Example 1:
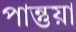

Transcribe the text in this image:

পান্তুয়া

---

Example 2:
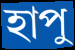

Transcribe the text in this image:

হাপু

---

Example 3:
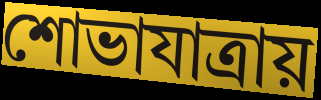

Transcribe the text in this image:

শোভাযাত্রায়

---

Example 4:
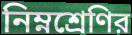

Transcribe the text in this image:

নিম্নশ্রেণির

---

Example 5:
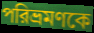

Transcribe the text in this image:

পরিভ্রমণকে